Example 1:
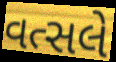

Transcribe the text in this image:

વત્સલે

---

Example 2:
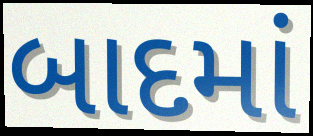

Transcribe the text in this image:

બાદમાં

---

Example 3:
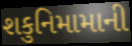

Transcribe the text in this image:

શકુનિમામાની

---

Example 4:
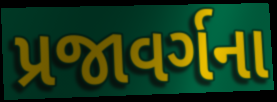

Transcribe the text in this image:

પ્રજાવર્ગના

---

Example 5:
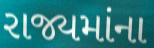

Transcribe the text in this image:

રાજ્યમાંના